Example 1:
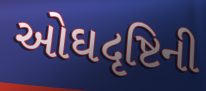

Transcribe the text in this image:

ઓઘદૃષ્ટિની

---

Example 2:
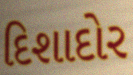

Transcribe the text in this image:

દિશાદોર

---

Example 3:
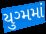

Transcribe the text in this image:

યુગ્મમાં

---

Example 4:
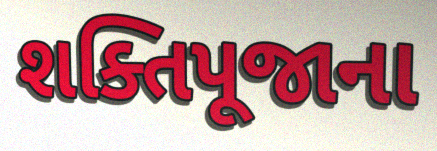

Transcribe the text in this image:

શક્તિપૂજાના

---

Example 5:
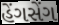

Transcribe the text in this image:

હેંગસેંગ